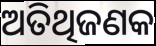
ଅତିଥିଜଣକ